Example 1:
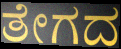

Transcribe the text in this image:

ತೇಗದ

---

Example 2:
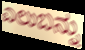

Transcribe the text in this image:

ಎಲುಬನ್ನು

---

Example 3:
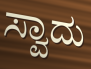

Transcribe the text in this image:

ಸ್ವಾದು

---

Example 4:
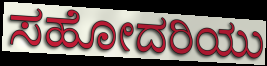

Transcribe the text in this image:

ಸಹೋದರಿಯು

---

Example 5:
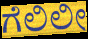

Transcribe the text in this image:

ಗೆಲಿಲೀ